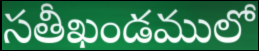
సతీఖండములో